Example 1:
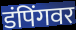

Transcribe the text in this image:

डंपिंगवर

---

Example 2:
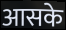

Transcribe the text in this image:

आसके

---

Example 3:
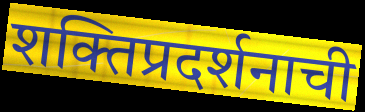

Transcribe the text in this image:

शक्तिप्रदर्शनाची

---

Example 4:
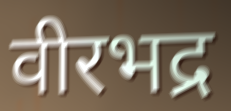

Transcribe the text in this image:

वीरभद्र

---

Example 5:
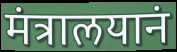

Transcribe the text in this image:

मंत्रालयानं